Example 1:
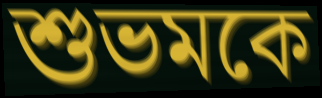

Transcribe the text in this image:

শুভমকে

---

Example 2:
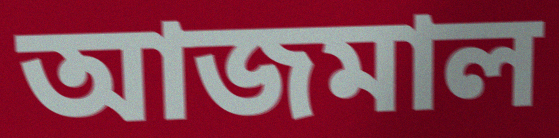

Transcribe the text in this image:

আজমাল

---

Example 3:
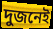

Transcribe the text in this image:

দুজনেই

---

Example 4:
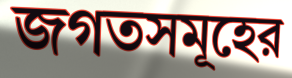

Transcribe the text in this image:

জগতসমূহের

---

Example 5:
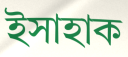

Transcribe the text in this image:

ইসাহাক